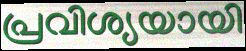
പ്രവിശ്യയായി